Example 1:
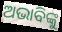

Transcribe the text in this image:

ଅଭାବିଙ୍କୁ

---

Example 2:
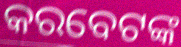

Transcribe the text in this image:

କରବେଟଙ୍କ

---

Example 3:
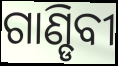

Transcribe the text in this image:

ଗାଣ୍ଡିବୀ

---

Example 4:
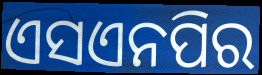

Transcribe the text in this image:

ଏସଏନପିର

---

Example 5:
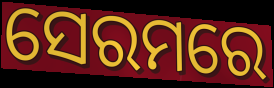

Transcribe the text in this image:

ସେରମରେ